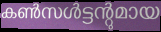
കൺസൾട്ടന്റുമായ